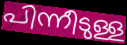
പിന്നീടുള്ള